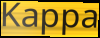
Kappa